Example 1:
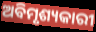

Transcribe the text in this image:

ଅବିମୃଶ୍ୟକାରୀ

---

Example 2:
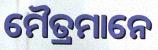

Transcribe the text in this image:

ମୈତ୍ରମାନେ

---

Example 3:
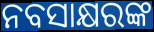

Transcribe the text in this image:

ନବସାକ୍ଷରଙ୍କ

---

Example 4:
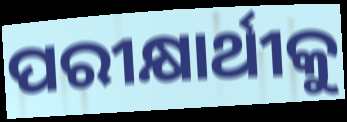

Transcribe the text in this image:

ପରୀକ୍ଷାର୍ଥୀକୁ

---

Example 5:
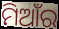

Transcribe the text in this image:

ମିଆଁର